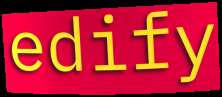
edify